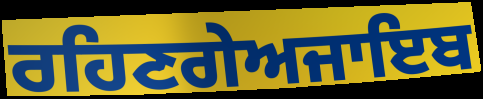
ਰਹਿਣਗੇਅਜਾਇਬ